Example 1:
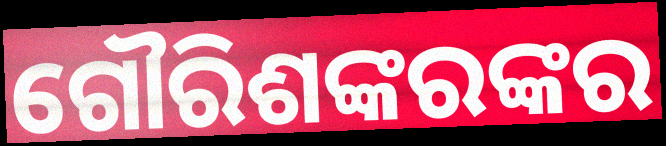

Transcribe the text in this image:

ଗୌରିଶଙ୍କରଙ୍କର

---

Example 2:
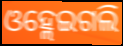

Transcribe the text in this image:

ଓହ୍ଲେଇଗଲି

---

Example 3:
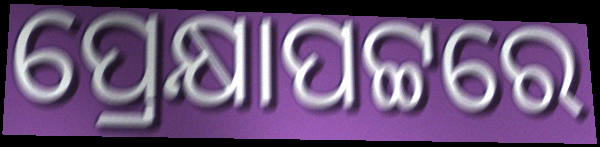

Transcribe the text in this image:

ପ୍ରେକ୍ଷାପଟ୍ଟରେ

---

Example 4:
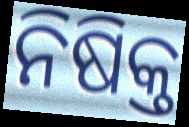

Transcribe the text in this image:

ନିଷିକ୍ତ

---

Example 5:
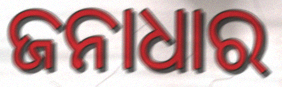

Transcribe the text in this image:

ଜନାଧାର